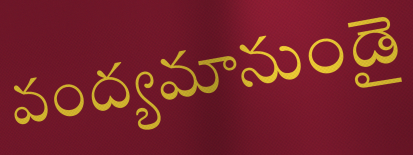
వంద్యమానుండై